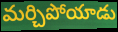
మర్చిపోయాడు